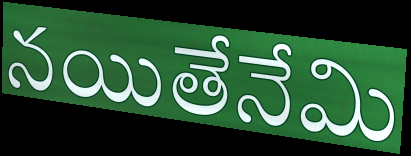
నయితేనేమి